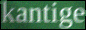
kantige